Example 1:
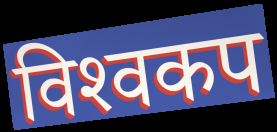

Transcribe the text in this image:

विश्‍वकप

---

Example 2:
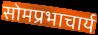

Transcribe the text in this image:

सोमप्रभाचार्य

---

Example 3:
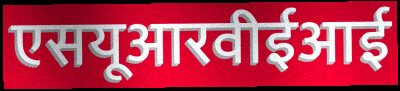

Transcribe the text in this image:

एसयूआरवीईआई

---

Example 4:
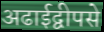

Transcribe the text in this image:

अढाईद्वीपसे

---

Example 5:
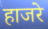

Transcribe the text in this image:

हाजरे